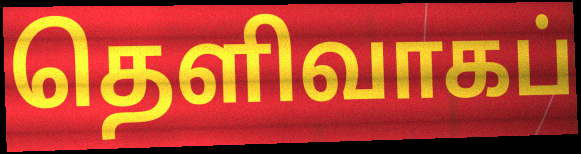
தெளிவாகப்